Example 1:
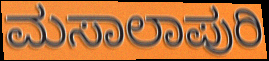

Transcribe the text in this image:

ಮಸಾಲಾಪುರಿ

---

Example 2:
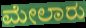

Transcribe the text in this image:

ಮೇಲಾರು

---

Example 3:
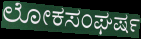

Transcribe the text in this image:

ಲೋಕಸಂಘರ್ಷ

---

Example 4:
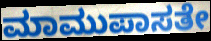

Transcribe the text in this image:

ಮಾಮುಪಾಸತೇ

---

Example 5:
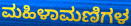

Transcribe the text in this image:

ಮಹಿಳಾಮಣಿಗಳ